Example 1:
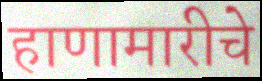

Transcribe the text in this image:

हाणामारीचे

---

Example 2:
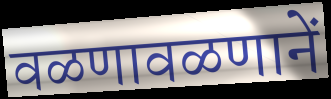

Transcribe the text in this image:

वळणावळणानें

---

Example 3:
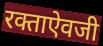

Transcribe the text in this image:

रक्ताऐवजी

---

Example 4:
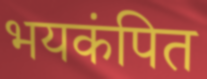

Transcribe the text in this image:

भयकंपित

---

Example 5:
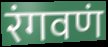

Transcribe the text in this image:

रंगवणं